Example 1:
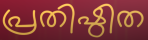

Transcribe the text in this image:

പ്രതിഷ്ഠിത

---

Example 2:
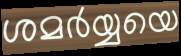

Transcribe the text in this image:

ശമർയ്യയെ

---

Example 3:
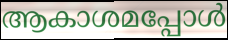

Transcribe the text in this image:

ആകാശമപ്പോൾ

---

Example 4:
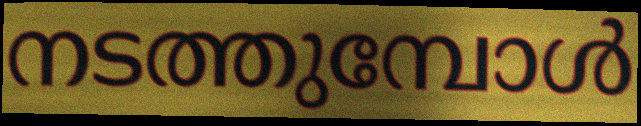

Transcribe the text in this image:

നടത്തുമ്പോൾ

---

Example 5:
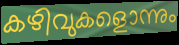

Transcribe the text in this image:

കഴിവുകളൊന്നും